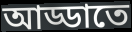
আড্ডাতে